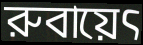
রুবায়েৎ